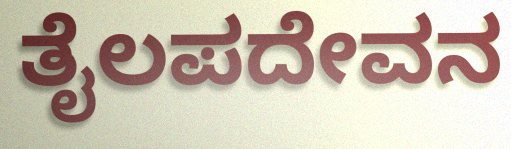
ತೈಲಪದೇವನ